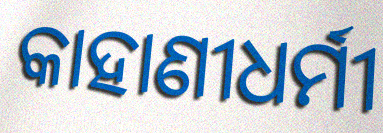
କାହାଣୀଧର୍ମୀ